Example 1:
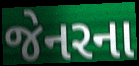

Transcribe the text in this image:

જેનરના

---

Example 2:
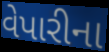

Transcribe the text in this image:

વેપારીના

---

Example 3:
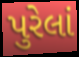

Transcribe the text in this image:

પુરેલાં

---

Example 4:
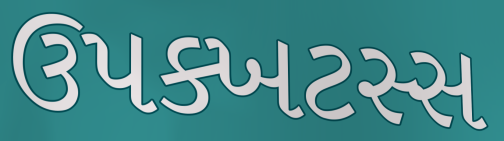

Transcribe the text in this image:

ઉપક્ખટસ્સ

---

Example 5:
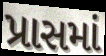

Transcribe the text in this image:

પ્રાસમાં